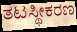
ತಟಸ್ಥೀಕರಣ